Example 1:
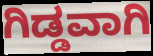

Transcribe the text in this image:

ಗಿಡ್ಡವಾಗಿ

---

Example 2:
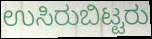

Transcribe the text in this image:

ಉಸಿರುಬಿಟ್ಟರು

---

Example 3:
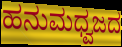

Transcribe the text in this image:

ಹನುಮಧ್ವಜದ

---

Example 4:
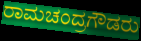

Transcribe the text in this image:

ರಾಮಚಂದ್ರಗೌಡರು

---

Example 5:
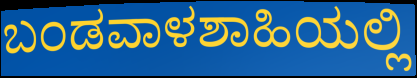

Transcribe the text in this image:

ಬಂಡವಾಳಶಾಹಿಯಲ್ಲಿ